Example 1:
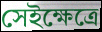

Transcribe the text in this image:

সেইক্ষেত্রে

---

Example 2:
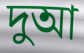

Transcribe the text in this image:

দুআ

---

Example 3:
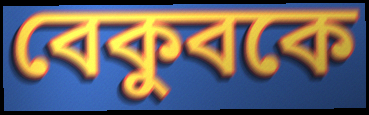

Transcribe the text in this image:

বেকুবকে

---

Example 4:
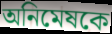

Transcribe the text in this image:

অনিমেষকে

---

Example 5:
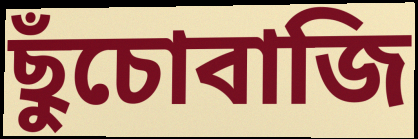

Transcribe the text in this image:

ছুঁচোবাজি